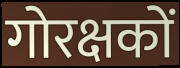
गोरक्षकों